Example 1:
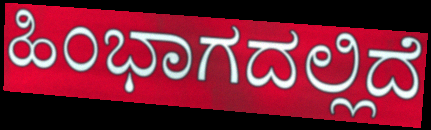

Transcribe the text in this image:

ಹಿಂಭಾಗದಲ್ಲಿದೆ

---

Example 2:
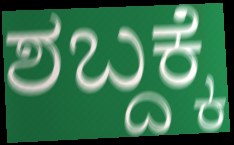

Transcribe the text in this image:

ಶಬ್ದಕ್ಕೆ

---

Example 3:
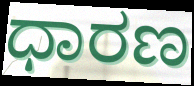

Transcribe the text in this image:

ಧಾರಣ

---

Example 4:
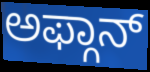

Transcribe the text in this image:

ಅಫ್ಗಾನ್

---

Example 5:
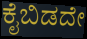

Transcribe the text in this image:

ಕೈಬಿಡದೇ